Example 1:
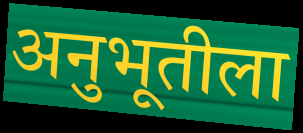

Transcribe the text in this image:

अनुभूतीला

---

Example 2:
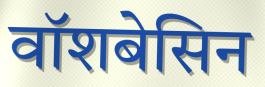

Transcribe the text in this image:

वॉशबेसिन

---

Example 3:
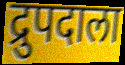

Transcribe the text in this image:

द्रुपदाला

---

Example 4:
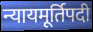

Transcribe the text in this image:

न्यायमूर्तिपदी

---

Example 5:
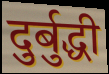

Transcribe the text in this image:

दुर्बुद्धी